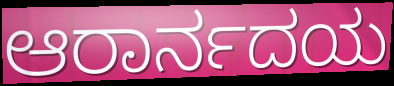
ಆರಾರ್ನದಯ